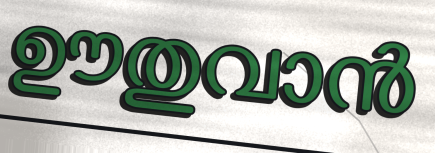
ഊതുവാൻ